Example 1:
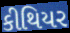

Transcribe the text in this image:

કીથિયર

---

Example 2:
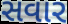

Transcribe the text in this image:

સવાર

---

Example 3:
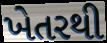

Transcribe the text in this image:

ખેતરથી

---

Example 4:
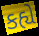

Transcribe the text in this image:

કહ્યે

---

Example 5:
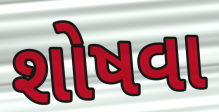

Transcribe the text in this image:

શોષવા